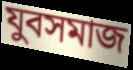
যুবসমাজ